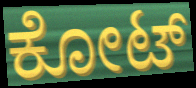
ಕೋಟ್